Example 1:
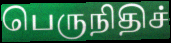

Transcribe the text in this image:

பெருநிதிச்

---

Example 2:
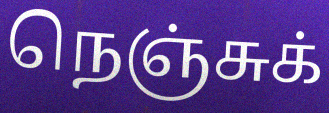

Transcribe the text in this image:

நெஞ்சுக்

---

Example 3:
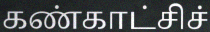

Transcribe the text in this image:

கண்காட்சிச்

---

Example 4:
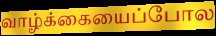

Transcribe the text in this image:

வாழ்க்கையைப்போல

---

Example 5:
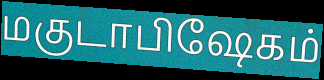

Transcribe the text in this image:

மகுடாபிஷேகம்